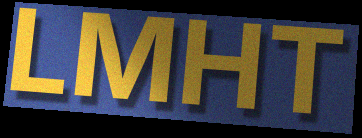
LMHT